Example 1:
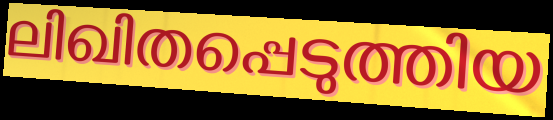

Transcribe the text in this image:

ലിഖിതപ്പെടുത്തിയ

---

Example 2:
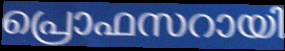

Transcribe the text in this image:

പ്രൊഫസറായി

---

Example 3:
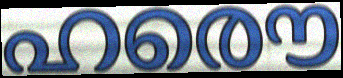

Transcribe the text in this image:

ഹരൌ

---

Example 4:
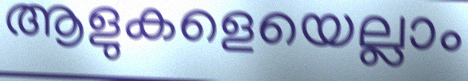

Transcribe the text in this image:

ആളുകളെയെല്ലാം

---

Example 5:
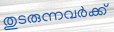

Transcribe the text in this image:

തുടരുന്നവർക്ക്